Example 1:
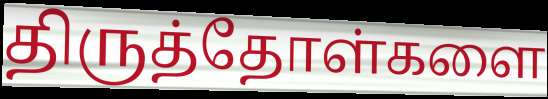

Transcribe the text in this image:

திருத்தோள்களை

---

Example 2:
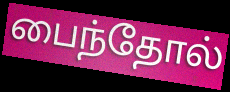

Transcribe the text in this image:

பைந்தோல்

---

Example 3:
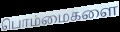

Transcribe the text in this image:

பொம்மைகளை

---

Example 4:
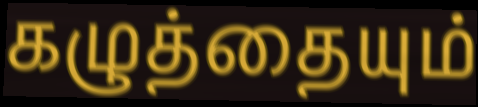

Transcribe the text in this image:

கழுத்தையும்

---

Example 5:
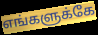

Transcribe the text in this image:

எங்களுக்கே